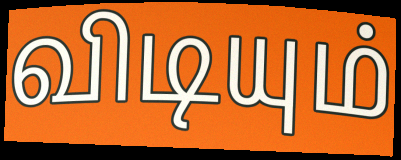
விடியும்